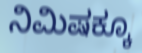
ನಿಮಿಷಕ್ಕೂ